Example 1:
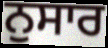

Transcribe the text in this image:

ਨੁਸਾਰ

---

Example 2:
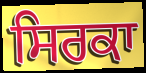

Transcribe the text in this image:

ਸਿਰਕਾ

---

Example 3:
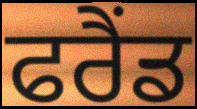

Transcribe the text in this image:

ਫਰੈਂਡ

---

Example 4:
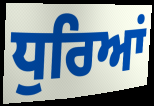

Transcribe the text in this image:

ਧੁਰਿਆਂ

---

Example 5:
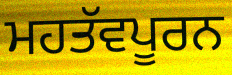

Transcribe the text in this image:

ਮਹਤੱਵਪੂਰਨ